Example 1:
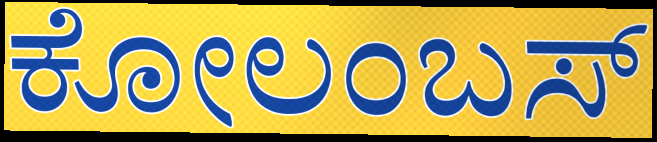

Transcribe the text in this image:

ಕೋಲಂಬಸ್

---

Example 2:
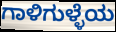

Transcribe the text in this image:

ಗಾಳಿಗುಳ್ಳೆಯ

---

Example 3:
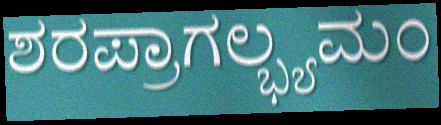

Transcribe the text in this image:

ಶರಪ್ರಾಗಲ್ಭ್ಯಮಂ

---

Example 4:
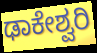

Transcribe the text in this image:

ಢಾಕೇಶ್ವರಿ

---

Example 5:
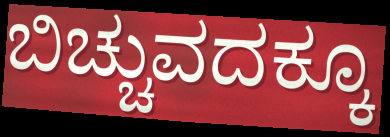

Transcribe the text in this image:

ಬಿಚ್ಚುವದಕ್ಕೂ